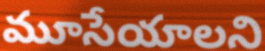
మూసేయాలని